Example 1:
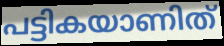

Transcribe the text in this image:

പട്ടികയാണിത്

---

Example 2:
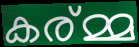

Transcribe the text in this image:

കര്മ്മ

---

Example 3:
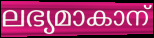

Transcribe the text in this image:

ലഭ്യമാകാന്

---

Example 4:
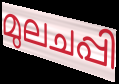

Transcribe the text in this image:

മുലചപ്പി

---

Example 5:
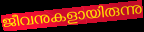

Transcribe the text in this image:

ജീവനുകളായിരുന്നു